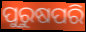
ପୁରୁଷପରି